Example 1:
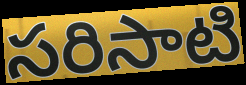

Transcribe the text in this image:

సరిసాటి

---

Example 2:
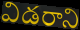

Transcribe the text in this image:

విడరాని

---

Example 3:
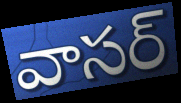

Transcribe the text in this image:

వాసర్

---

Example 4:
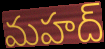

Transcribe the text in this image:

మహద్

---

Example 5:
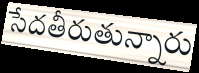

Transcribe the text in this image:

సేదతీరుతున్నారు